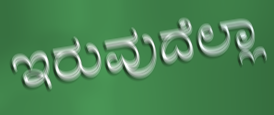
ಇರುವುದೆಲ್ಲಾ